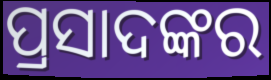
ପ୍ରସାଦଙ୍କର